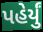
પહેર્યું